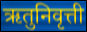
ऋतुनिवृत्ती